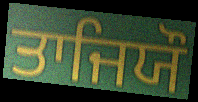
ਤਾਜਿਯੌ